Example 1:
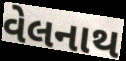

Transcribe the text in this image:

વેલનાથ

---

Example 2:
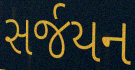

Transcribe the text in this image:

સર્જયન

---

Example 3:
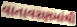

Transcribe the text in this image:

વાતાવરણમાંથી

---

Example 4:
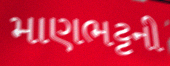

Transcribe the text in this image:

માણભટ્ટની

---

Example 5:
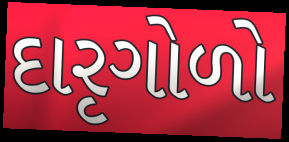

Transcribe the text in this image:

દારૃગોળો